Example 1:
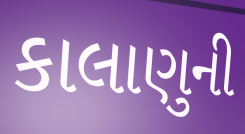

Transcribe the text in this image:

કાલાણુની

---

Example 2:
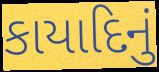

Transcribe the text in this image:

કાયાદિનું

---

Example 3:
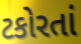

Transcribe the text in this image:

ટકોરતાં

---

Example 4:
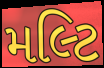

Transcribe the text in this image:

મલ્ટિ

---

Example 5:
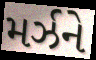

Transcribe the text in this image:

મર્ઝને